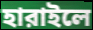
হারাইলে